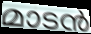
മാടൻ